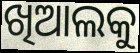
ଖିଆଲକୁ